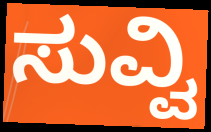
ಸುವ್ವಿ